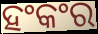
ହଂକଂର